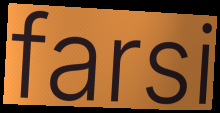
farsi